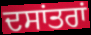
ਦਸਾਂਤਰਾਂ